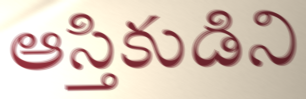
ఆస్తికుడిని